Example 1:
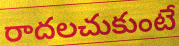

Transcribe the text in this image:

రాదలచుకుంటే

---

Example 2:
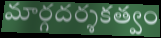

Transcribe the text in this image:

మార్గదర్శకత్వం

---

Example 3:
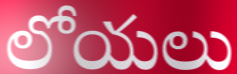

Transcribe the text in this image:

లోయలు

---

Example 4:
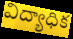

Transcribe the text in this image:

విద్యాధిక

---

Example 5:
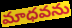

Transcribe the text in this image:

మాధవను